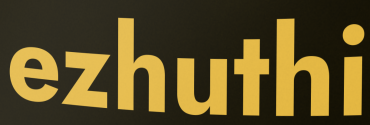
ezhuthi